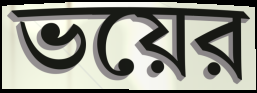
ভয়ের